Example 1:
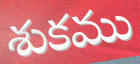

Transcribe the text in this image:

శుకము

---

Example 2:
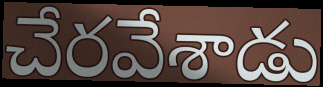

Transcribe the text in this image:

చేరవేశాడు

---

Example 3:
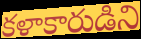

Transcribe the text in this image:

కళాకారుడిని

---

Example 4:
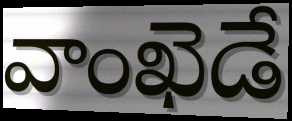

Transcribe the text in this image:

వాంఖెడే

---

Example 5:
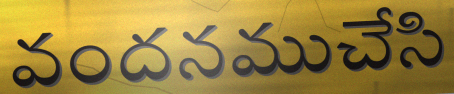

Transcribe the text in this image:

వందనముచేసి